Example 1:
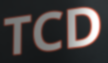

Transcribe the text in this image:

TCD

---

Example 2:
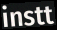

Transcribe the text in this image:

instt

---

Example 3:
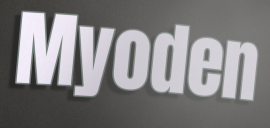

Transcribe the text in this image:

Myoden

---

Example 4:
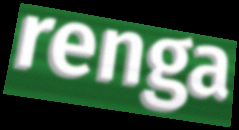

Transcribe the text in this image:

renga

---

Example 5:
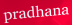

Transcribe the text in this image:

pradhana